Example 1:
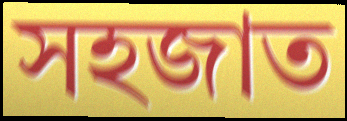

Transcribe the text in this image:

সহজাত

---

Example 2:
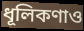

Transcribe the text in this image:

ধূলিকণাও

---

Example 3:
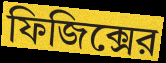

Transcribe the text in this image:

ফিজিক্সের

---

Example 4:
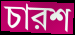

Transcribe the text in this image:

চারশ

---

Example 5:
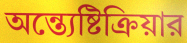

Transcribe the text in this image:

অন্ত্যেষ্টিক্রিয়ার